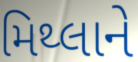
મિથ્લાને